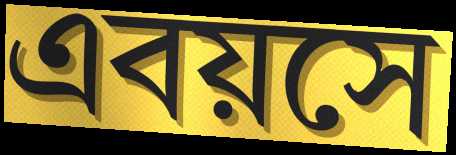
এবয়সে